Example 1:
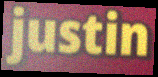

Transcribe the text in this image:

justin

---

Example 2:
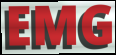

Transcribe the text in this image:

EMG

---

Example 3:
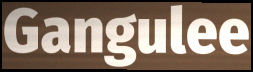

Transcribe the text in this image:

Gangulee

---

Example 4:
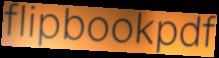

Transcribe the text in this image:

flipbookpdf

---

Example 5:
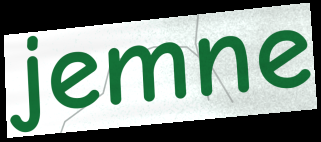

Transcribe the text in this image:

jemne